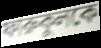
ফারুকুলকে